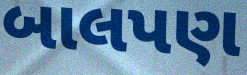
બાલપણ